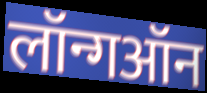
लॉन्गऑन